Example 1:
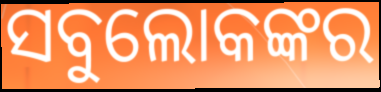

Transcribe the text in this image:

ସବୁଲୋକଙ୍କର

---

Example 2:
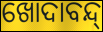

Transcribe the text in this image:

ଖୋଦାବନ୍ଦ୍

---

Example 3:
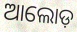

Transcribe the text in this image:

ଆଲୋଡ଼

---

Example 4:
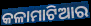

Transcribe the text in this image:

କଳାମାଟିଆର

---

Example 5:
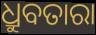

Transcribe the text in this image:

ଧ୍ରୁବତାରା